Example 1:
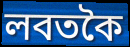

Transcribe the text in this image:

লবতকৈ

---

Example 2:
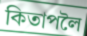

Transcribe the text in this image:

কিতাপলৈ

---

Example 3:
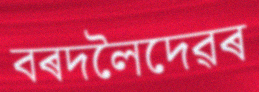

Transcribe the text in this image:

বৰদলৈদেৱৰ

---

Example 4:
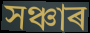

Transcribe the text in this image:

সঞ্চাৰ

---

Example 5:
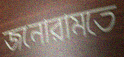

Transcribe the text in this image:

জনোৱামতে